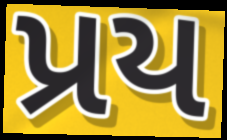
પ્રય